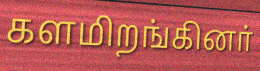
களமிறங்கினர்